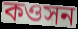
কওসন